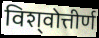
विश्वोत्तीर्ण